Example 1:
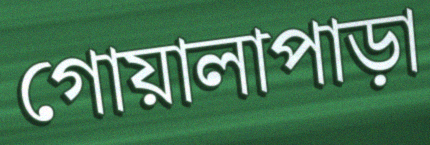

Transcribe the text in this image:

গোয়ালাপাড়া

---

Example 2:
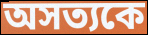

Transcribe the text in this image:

অসত্যকে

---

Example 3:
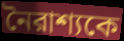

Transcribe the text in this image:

নৈরাশ্যকে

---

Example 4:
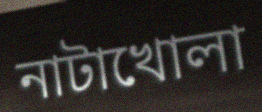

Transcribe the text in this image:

নাটাখোলা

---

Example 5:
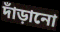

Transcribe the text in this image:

দাঁড়ানো